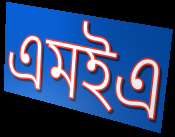
এমইএ